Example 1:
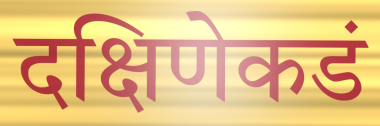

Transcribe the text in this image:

दक्षिणेकडं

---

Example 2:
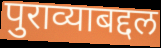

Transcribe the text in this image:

पुराव्याबद्दल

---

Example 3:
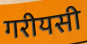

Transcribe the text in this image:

गरीयसी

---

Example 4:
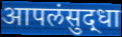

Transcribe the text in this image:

आपलंसुद्धा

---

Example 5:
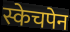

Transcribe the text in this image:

स्केचपेन